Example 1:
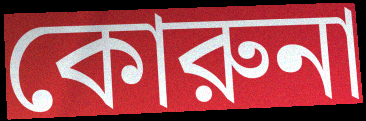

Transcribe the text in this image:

কোরুনা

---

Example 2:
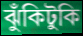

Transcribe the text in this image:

ঝুঁকিটুকি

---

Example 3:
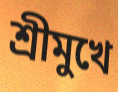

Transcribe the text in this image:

শ্রীমুখে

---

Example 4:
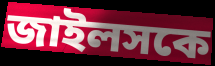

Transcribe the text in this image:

জাইলসকে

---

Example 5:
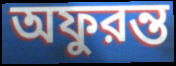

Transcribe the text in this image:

অফুরন্ত